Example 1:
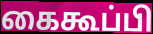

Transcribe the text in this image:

கைகூப்பி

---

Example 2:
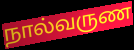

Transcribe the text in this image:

நால்வருண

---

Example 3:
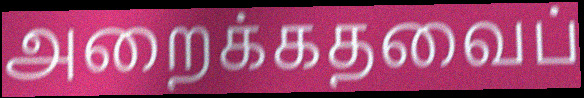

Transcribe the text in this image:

அறைக்கதவைப்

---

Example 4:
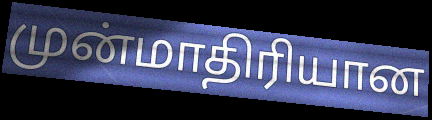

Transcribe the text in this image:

முன்மாதிரியான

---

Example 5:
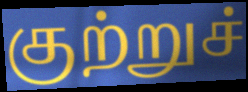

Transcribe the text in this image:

குற்றுச்